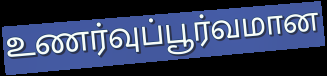
உணர்வுப்பூர்வமான